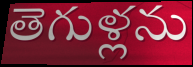
తెగుళ్లను